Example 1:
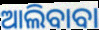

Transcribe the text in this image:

ଆଲିବାବା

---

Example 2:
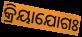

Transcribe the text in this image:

କ୍ରିୟାଯୋଗଃ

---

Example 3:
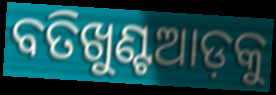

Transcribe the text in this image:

ବତିଖୁଣ୍ଟଆଡ଼କୁ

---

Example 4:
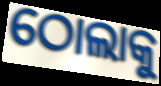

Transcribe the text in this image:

ଠୋଲାକୁ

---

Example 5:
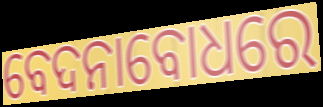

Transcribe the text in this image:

ବେଦନାବୋଧରେ